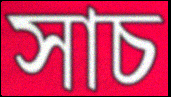
সাচ